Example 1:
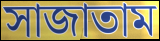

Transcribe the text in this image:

সাজাতাম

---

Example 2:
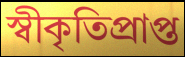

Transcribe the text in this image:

স্বীকৃতিপ্রাপ্ত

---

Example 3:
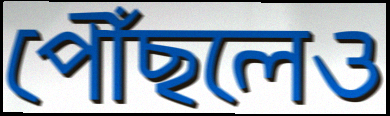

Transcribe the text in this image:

পৌঁছলেও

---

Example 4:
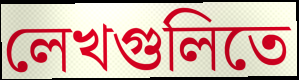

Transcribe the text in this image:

লেখগুলিতে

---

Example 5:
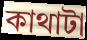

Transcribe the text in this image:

কাথাটা